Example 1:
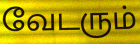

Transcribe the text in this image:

வேடரும்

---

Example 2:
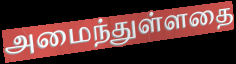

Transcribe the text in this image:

அமைந்துள்ளதை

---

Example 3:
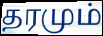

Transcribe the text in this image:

தரமும்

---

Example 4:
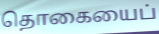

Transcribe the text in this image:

தொகையைப்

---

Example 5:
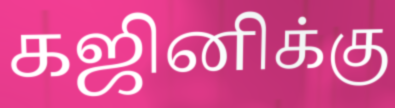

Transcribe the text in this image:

கஜினிக்கு